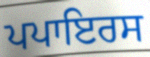
ਪਪਾਇਰਸ